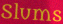
Slums